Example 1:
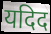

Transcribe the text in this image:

यदिद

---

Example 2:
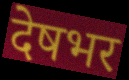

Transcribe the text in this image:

देषभर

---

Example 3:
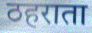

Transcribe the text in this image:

ठहराता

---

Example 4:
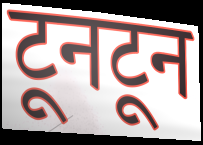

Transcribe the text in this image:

टूनटून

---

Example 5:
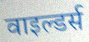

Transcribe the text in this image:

वाइल्डर्स